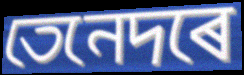
তেনেদৰে